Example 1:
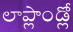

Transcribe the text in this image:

లాప్లాండ్లో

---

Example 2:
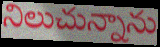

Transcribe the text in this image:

నిలుచున్నాను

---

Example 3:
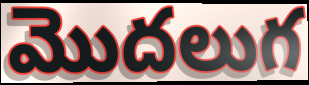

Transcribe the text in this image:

మొదలుగ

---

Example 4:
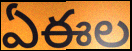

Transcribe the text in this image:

ఏఈల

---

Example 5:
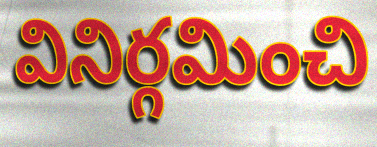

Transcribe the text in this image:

వినిర్గమించి